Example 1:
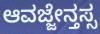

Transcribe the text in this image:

ಆವಜ್ಜೇನ್ತಸ್ಸ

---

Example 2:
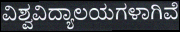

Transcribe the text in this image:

ವಿಶ್ವವಿದ್ಯಾಲಯಗಳಾಗಿವೆ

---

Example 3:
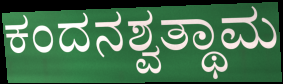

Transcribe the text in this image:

ಕಂದನಶ್ವತ್ಥಾಮ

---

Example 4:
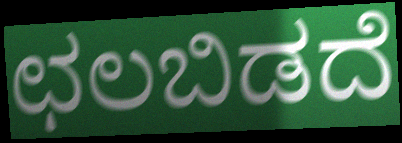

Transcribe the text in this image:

ಛಲಬಿಡದೆ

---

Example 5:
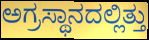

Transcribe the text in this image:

ಅಗ್ರಸ್ಥಾನದಲ್ಲಿತ್ತು